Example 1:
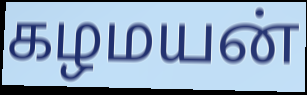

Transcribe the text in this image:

கழமயன்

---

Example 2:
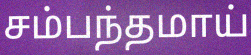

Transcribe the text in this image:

சம்பந்தமாய்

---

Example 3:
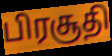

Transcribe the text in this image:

பிரசூதி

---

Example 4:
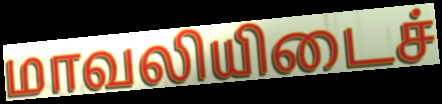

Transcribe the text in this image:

மாவலியிடைச்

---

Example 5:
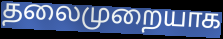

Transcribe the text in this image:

தலைமுறையாக